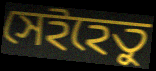
সেইহেতু